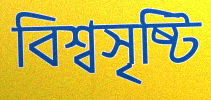
বিশ্বসৃষ্টি